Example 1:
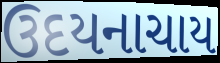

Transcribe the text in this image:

ઉદયનાચાય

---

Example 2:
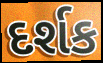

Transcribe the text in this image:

દર્શક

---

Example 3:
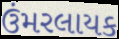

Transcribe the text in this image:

ઉંમરલાયક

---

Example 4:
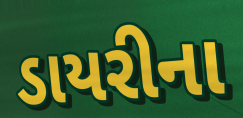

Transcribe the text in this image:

ડાયરીના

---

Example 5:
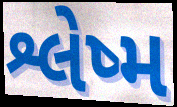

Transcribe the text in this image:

શ્લેષ્મ